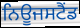
ਨਿਊਜਸਟੈਂਡ